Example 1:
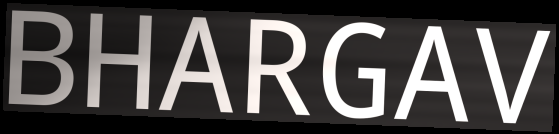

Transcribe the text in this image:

BHARGAV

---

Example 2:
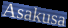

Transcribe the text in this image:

Asakusa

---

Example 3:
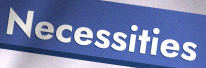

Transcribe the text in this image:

Necessities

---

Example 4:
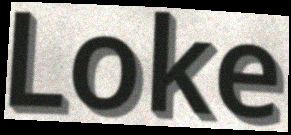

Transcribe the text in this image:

Loke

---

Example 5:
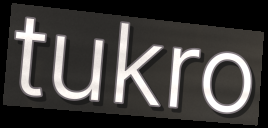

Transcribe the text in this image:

tukro